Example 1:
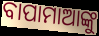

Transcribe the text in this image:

ବାପାମାଆଙ୍କୁ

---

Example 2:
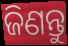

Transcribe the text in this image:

ଜିଣନ୍ତୁ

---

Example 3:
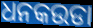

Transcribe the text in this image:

ଧନକଉଡା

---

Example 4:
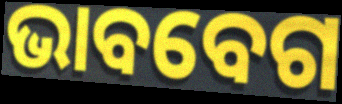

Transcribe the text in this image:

ଭାବବେଗ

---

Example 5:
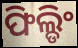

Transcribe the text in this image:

ଫିଲ୍ଡିଂ